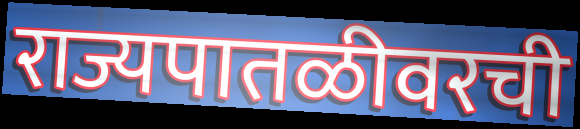
राज्यपातळीवरची